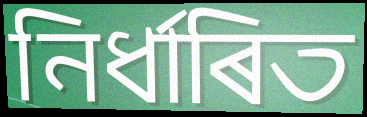
নিৰ্ধাৰিত